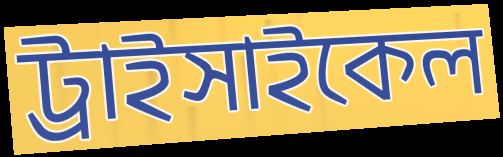
ট্রাইসাইকেল